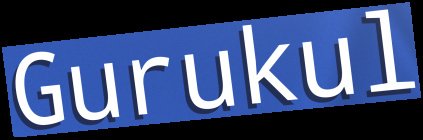
Gurukul